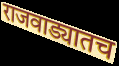
राजवाड्यातच